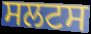
ਸਲਟਸ